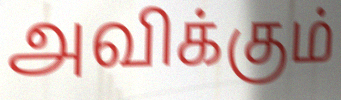
அவிக்கும்